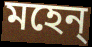
মহেন্